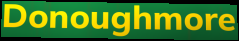
Donoughmore